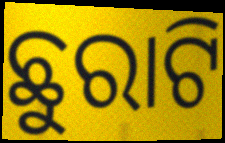
ଛୁରାଟି